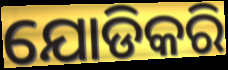
ଯୋଡିକରି